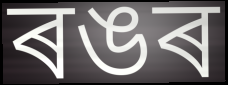
ৰঙৰ